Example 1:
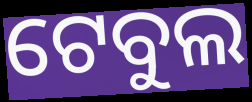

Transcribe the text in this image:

ଟେବୁଲ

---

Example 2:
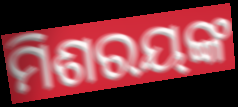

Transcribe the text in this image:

ମିଶରୟଙ୍କ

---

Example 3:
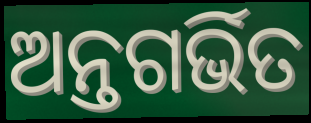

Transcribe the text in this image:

ଅନ୍ତଗର୍ଭିତ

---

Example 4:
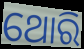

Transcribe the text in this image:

ଥୋରି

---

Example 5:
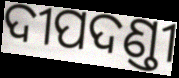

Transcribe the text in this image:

ଦୀପଦଣ୍ଡୀ